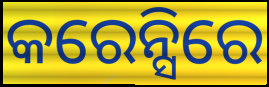
କରେନ୍ସିରେ